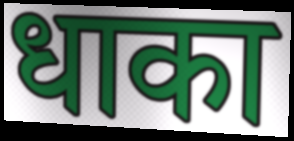
धाका